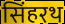
सिंहरथ